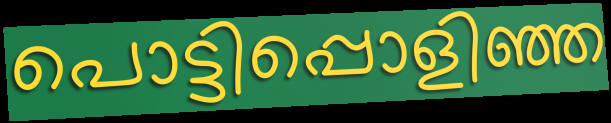
പൊട്ടിപ്പൊളിഞ്ഞ